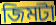
জিমটা